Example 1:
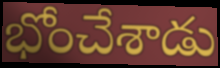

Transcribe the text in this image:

భోంచేశాడు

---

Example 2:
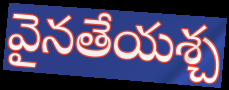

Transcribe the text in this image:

వైనతేయశ్చ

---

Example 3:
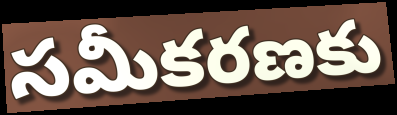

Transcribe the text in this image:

సమీకరణకు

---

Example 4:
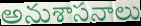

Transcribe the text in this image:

అనుశాసనాలు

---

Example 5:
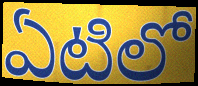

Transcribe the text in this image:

ఏటిలో